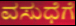
ವಸುಧೆಗೆ